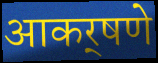
आकर्षणे